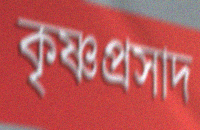
কৃষ্ণপ্রসাদ